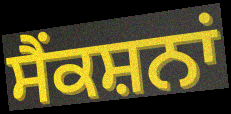
ਸੈਂਕਸ਼ਨਾਂ